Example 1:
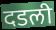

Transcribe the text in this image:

दडली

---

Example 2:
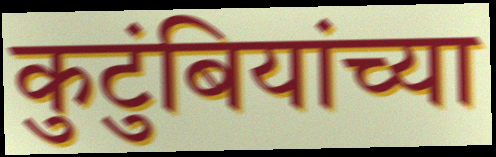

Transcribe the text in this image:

कुटुंबियांच्या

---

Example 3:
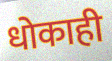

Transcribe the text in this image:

धोकाही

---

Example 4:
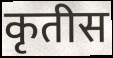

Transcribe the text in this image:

कृतीस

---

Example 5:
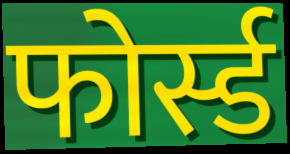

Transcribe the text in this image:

फोर्स्ड